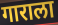
गाराला